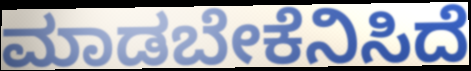
ಮಾಡಬೇಕೆನಿಸಿದೆ